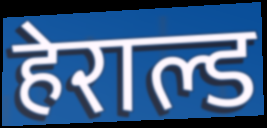
हेराल्ड